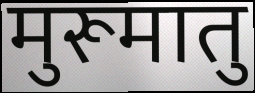
मुरूमातु